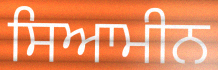
ਸਿਆਮੀਨ